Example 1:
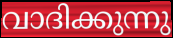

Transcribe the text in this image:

വാദിക്കുന്നു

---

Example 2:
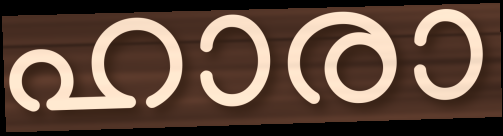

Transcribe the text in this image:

ഹാരാ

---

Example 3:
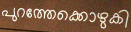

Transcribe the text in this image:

പുറത്തേക്കൊഴുകി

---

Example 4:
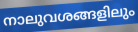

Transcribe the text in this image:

നാലുവശങ്ങളിലും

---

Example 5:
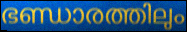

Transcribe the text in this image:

ഭണ്ഡാരത്തിലും